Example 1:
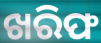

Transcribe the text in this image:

ଖରିଫ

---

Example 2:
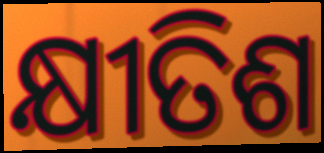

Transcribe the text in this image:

କ୍ଷୀତିଶ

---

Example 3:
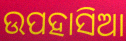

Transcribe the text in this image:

ଉପହାସିଆ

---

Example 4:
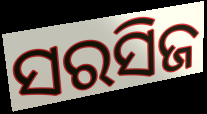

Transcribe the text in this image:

ସରସିଜ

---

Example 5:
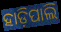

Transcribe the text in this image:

ହାଡ଼ିପାଲି